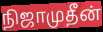
நிஜாமுதீன்